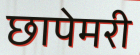
छापेमरी